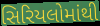
સિરિયલોમાંથી